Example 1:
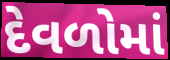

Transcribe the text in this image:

દેવળોમાં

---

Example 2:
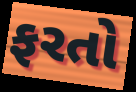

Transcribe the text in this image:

ફરતો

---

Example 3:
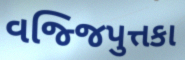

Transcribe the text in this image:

વજ્જિપુત્તકા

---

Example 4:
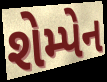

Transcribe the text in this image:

શેમ્પેન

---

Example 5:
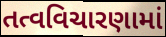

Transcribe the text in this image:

તત્વવિચારણામાં